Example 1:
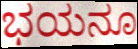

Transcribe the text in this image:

ಭಯನೂ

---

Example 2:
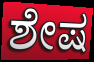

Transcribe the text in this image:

ಶೇಷ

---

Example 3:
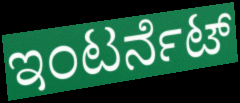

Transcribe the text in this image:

ಇಂಟರ್ನೆಟ್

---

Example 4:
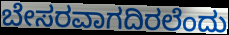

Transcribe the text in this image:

ಬೇಸರವಾಗದಿರಲೆಂದು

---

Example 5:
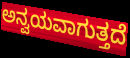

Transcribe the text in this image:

ಅನ್ವಯವಾಗುತ್ತದೆ